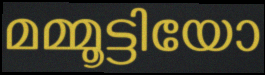
മമ്മൂട്ടിയോ